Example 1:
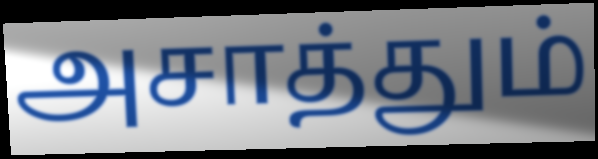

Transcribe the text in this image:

அசாத்தும்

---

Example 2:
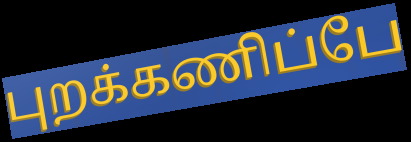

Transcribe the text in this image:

புறக்கணிப்பே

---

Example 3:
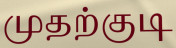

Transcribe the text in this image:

முதற்குடி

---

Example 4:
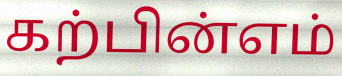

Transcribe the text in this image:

கற்பின்எம்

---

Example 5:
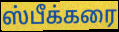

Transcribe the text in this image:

ஸ்பீக்கரை